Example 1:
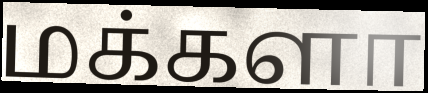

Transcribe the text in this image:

மக்களா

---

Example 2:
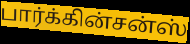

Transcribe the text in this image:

பார்க்கின்சன்ஸ்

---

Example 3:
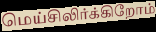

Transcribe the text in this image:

மெய்சிலிர்க்கிறோம்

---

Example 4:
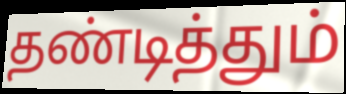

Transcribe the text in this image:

தண்டித்தும்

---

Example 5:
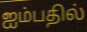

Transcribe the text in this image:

ஐம்பதில்